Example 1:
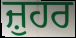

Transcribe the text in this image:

ਜ਼ੁਹਰ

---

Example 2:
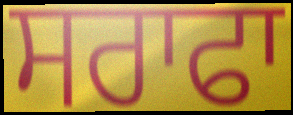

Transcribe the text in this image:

ਸਰਾਫਾ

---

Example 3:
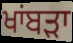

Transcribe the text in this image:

ਖਾਂਬੜਾ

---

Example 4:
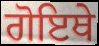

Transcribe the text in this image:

ਗੋਇਥੇ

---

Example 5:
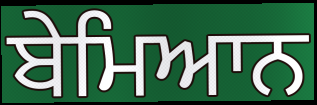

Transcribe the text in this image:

ਬੇਮਿਆਨ